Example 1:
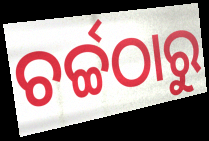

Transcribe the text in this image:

ଚର୍ଚ୍ଚଠାରୁ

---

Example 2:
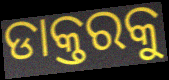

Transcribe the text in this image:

ଡାକ୍ତରକୁ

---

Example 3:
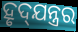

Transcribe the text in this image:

ହୃଦ୍‍ଯନ୍ତ୍ରର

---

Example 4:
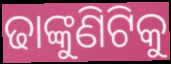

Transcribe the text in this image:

ଢାଙ୍କୁଣିଟିକୁ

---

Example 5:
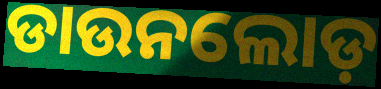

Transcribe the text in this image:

ଡାଉନଲୋଡ଼